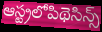
ఆస్ట్రలోపిథెసిన్స్